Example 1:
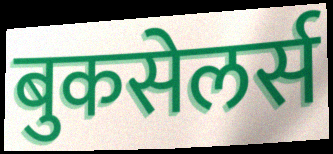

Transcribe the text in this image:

बुकसेलर्स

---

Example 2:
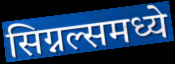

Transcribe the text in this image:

सिग्नल्समध्ये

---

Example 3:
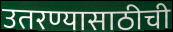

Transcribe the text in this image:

उतरण्यासाठीची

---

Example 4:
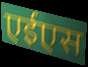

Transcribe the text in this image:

एईएस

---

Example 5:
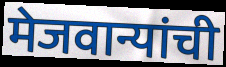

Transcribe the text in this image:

मेजवान्यांची